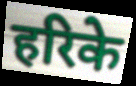
हरिके